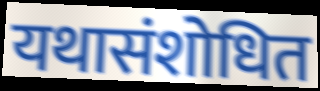
यथासंशोधित